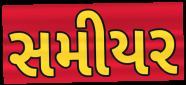
સમીયર